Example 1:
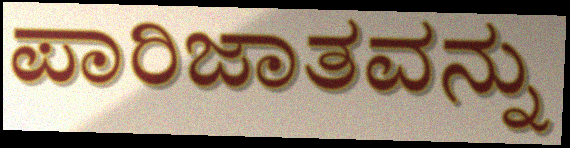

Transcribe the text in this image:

ಪಾರಿಜಾತವನ್ನು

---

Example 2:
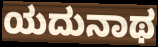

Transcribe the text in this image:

ಯದುನಾಥ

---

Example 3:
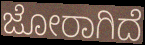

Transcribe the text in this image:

ಜೋರಾಗಿದೆ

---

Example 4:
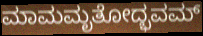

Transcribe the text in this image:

ಮಾಮಮೃತೋದ್ಭವಮ್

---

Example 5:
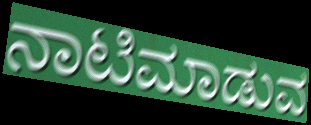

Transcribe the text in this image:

ನಾಟಿಮಾಡುವ